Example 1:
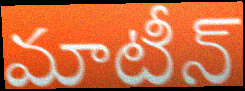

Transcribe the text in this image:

మాటీన్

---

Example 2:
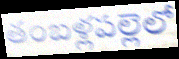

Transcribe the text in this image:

తంబళ్లపల్లెలో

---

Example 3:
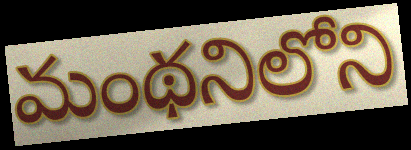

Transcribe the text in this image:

మంథనిలోని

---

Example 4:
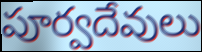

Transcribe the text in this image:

పూర్వదేవులు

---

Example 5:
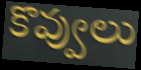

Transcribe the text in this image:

కొవ్వులు